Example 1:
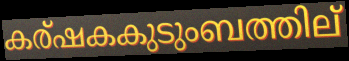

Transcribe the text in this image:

കര്ഷകകുടുംബത്തില്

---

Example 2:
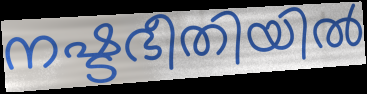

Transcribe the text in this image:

നഷ്ടഭീതിയിൽ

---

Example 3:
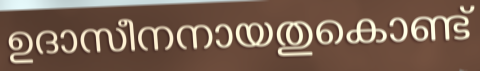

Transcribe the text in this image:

ഉദാസീനനായതുകൊണ്ട്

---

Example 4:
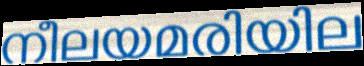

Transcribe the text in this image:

നീലയമരിയില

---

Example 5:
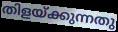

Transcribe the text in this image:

തിളയ്ക്കുന്നതു